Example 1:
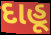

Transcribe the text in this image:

દાહૂ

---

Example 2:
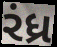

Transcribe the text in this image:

રંધ્ર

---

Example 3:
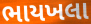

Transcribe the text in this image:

ભાયખલા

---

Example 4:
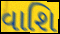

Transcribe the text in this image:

વાશિ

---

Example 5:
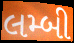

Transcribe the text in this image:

લમ્બી